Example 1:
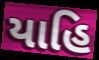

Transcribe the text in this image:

યાહિ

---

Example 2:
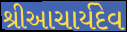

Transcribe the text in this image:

શ્રીઆચાર્યદેવ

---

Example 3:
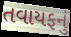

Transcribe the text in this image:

તવાયફનું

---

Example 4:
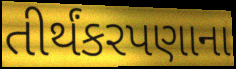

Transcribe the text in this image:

તીર્થંકરપણાના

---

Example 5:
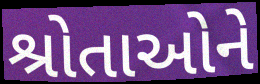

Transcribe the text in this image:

શ્રોતાઓને